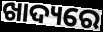
ଖାଦ୍ୟରେ